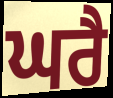
ਘਰੈ